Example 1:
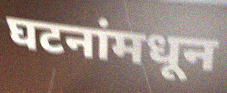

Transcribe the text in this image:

घटनांमधून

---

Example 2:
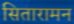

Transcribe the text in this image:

सितारामन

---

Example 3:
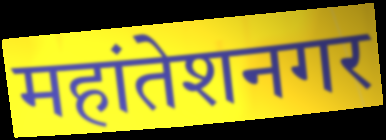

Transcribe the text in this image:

महांतेशनगर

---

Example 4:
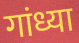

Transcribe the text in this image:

गांध्या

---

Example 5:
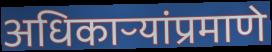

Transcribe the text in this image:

अधिकाऱ्यांप्रमाणे